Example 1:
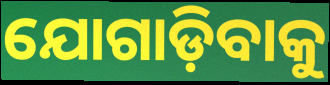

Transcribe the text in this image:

ଯୋଗାଡ଼ିବାକୁ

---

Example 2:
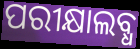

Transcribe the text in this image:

ପରୀକ୍ଷାଲବ୍ଧ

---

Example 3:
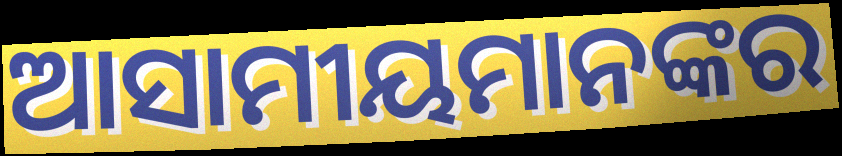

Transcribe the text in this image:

ଆସାମୀୟମାନଙ୍କର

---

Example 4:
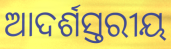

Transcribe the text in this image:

ଆଦର୍ଶସ୍ତରୀୟ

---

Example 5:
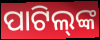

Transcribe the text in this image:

ପାଟିଲ୍‌ଙ୍କ